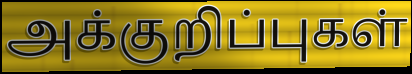
அக்குறிப்புகள்